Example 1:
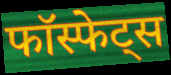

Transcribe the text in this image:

फॉस्फेट्स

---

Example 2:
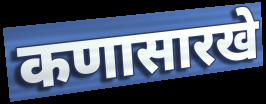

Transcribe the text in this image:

कणासारखे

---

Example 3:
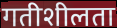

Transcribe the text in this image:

गतीशीलता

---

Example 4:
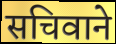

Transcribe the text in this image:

सचिवाने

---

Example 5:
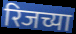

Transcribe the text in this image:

रिजच्या